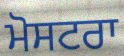
ਮੋਸਟਰਾ